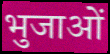
भुजाओं